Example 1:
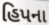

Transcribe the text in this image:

હિપના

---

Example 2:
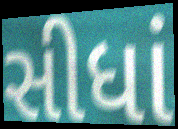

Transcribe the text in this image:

સીધાં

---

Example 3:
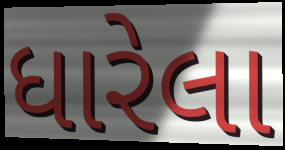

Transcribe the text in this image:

ધારેલા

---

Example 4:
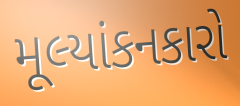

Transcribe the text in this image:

મૂલ્યાંકનકારો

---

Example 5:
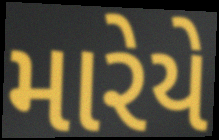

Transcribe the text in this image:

મારેયે